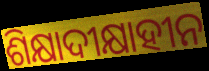
ଶିକ୍ଷାଦୀକ୍ଷାହୀନ